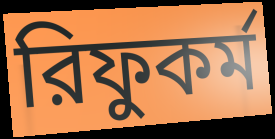
রিফুকর্ম